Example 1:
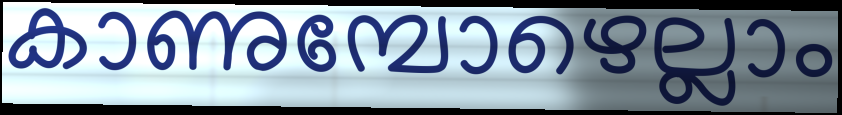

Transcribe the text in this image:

കാണുമ്പോഴെല്ലാം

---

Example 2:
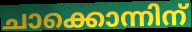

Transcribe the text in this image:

ചാക്കൊന്നിന്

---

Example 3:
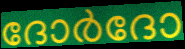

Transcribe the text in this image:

ദോർദോ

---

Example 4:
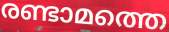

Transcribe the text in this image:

രണ്ടാമത്തെ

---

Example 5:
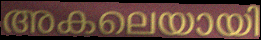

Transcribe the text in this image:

അകലെയായി